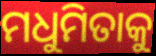
ମଧୁମିତାକୁ